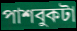
পাশবুকটা